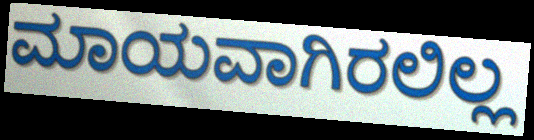
ಮಾಯವಾಗಿರಲಿಲ್ಲ